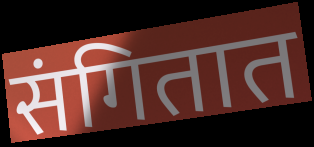
संगितात